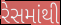
રેસમાંથી